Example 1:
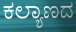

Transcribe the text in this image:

ಕಲ್ಯಾಣದ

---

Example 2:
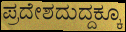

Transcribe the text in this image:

ಪ್ರದೇಶದುದ್ದಕ್ಕೂ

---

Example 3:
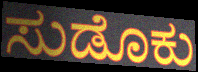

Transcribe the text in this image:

ಸುಡೊಕು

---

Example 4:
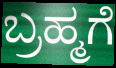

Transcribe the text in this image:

ಬ್ರಹ್ಮಗೆ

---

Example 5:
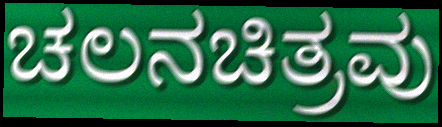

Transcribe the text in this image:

ಚಲನಚಿತ್ರವು